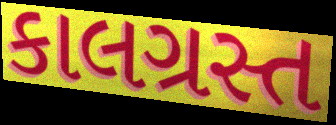
કાલગ્રસ્ત